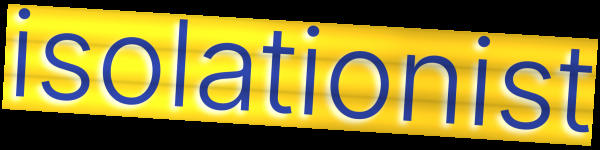
isolationist